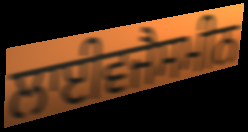
ਲਾਈਵਜੈਸਮੀਨ